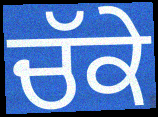
ਚੱਕੇ